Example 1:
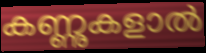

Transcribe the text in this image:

കണ്ണുകളാൽ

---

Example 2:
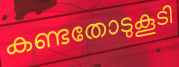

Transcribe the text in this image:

കണ്ടതോടുകൂടി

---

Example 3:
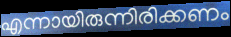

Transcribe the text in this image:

എന്നായിരുന്നിരിക്കണം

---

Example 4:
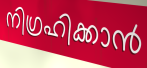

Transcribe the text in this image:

നിഗ്രഹിക്കാൻ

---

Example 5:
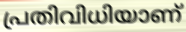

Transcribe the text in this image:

പ്രതിവിധിയാണ്